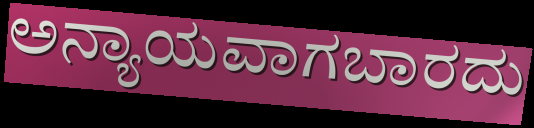
ಅನ್ಯಾಯವಾಗಬಾರದು